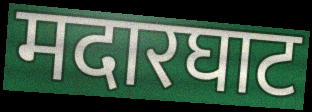
मदारघाट